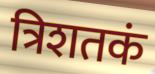
त्रिशतकं